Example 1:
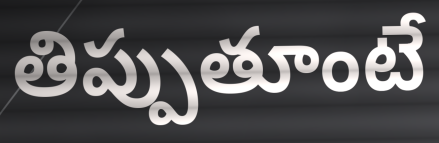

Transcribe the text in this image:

తిప్పుతూంటే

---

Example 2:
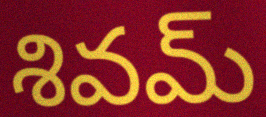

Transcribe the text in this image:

శివమ్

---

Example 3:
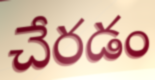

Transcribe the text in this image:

చేరడం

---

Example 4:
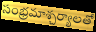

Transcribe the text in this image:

సంభ్రమాశ్చర్యాలతో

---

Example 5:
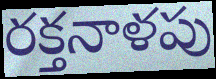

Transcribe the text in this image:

రక్తనాళపు